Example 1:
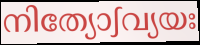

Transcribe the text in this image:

നിത്യോഽവ്യയഃ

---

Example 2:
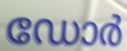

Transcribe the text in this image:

ഡോർ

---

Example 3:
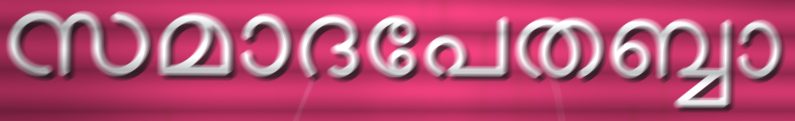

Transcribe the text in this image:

സമാദപേതബ്ബാ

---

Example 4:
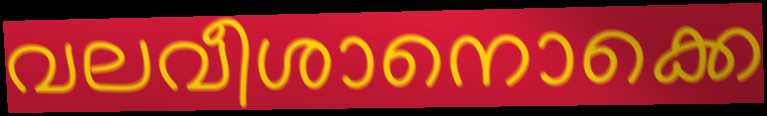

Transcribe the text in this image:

വലവീശാനൊക്കെ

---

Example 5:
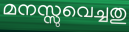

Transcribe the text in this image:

മനസ്സുവെച്ചതു